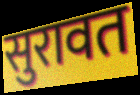
सुरावत